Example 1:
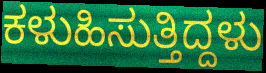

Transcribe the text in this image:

ಕಳುಹಿಸುತ್ತಿದ್ದಳು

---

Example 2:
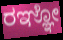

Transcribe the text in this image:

ರಞ್ಞೋ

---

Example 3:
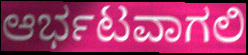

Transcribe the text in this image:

ಆರ್ಭಟವಾಗಲಿ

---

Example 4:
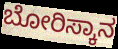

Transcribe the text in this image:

ಬೋರಿಸ್ಕಾನ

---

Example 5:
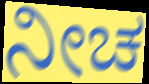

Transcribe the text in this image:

ನೀಚ